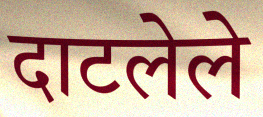
दाटलेले